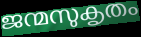
ജന്മസുകൃതം